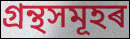
গ্ৰন্থসমূহৰ